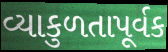
વ્યાકુળતાપૂર્વક